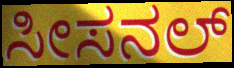
ಸೀಸನಲ್